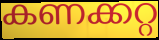
കണക്കറ്റ